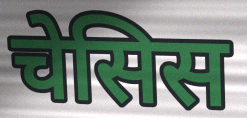
चेसिस